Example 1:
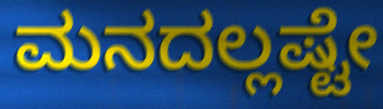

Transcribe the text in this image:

ಮನದಲ್ಲಷ್ಟೇ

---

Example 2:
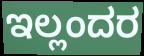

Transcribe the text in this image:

ಇಲ್ಲಂದರ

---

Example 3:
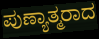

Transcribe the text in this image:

ಪುಣ್ಯಾತ್ಮರಾದ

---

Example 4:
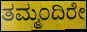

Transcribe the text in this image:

ತಮ್ಮಂದಿರೇ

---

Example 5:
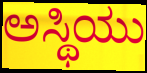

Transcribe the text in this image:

ಅಸ್ಥಿಯು